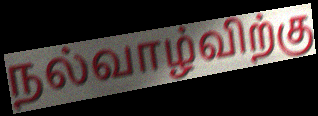
நல்வாழ்விற்கு